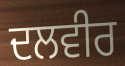
ਦਲਵੀਰ